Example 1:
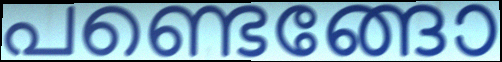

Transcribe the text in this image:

പണ്ടെങ്ങോ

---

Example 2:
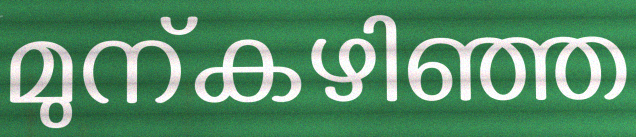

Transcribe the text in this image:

മുന്കഴിഞ്ഞ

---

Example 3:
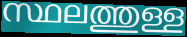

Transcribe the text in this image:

സ്ഥലത്തുള്ള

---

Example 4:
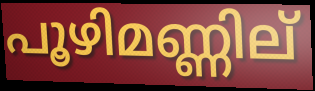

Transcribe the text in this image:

പൂഴിമണ്ണില്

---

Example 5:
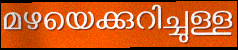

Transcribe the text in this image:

മഴയെക്കുറിച്ചുള്ള